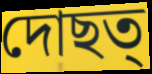
দোছত্